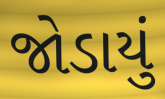
જોડાયું